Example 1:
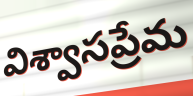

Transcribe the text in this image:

విశ్వాసప్రేమ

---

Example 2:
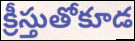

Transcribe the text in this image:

క్రీస్తుతోకూడ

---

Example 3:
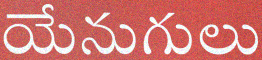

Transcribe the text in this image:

యేనుగులు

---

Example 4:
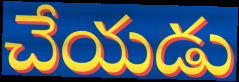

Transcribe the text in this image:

చేయడు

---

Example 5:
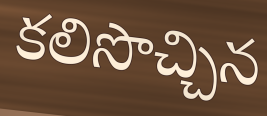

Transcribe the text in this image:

కలిసొచ్చిన